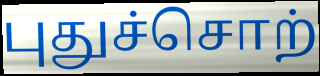
புதுச்சொற்